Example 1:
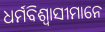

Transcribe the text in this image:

ଧର୍ମବିଶ୍ଵାସୀମାନେ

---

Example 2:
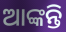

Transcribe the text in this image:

ଆଙ୍କନ୍ତି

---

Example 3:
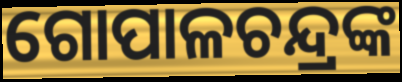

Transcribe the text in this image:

ଗୋପାଳଚନ୍ଦ୍ରଙ୍କ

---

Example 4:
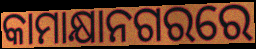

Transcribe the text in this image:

କାମାକ୍ଷାନଗରରେ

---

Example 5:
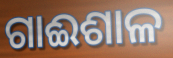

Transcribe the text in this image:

ଗାଈଶାଳ